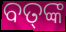
ବତ୍‍ଙ୍କ